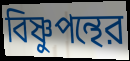
বিষ্ণুপন্থের